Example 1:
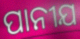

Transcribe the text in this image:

ପାନୀଯ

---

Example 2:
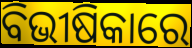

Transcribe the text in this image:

ବିଭୀଷିକାରେ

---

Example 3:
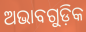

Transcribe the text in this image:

ଅଭାବଗୁଡ଼ିକ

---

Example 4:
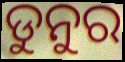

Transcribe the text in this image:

ଡୁନୁର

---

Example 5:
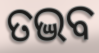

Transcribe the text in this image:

ତଦ୍ଭବ